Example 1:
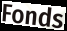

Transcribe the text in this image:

Fonds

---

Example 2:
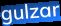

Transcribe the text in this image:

gulzar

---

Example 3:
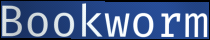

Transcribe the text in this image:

Bookworm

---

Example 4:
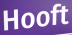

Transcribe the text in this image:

Hooft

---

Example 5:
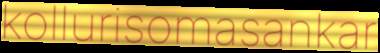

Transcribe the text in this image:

kollurisomasankar